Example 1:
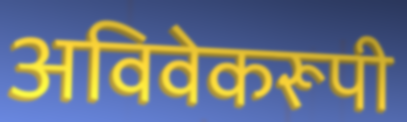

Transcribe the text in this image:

अविवेकरूपी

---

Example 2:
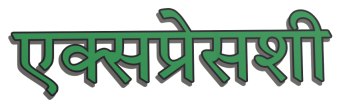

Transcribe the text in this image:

एक्सप्रेसशी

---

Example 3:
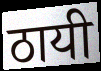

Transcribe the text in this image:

ठायी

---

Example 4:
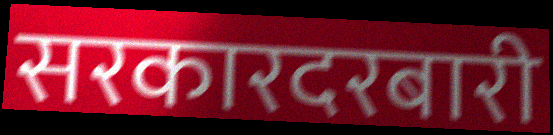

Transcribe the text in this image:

सरकारदरबारी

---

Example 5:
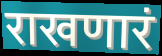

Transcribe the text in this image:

राखणारं